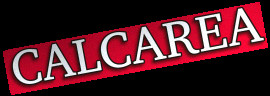
CALCAREA